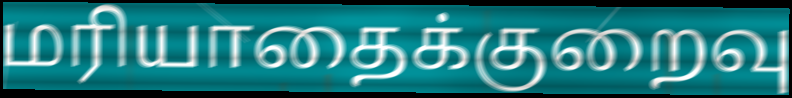
மரியாதைக்குறைவு